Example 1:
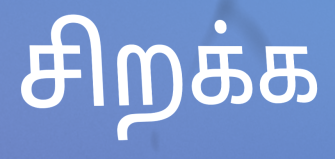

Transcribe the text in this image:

சிறக்க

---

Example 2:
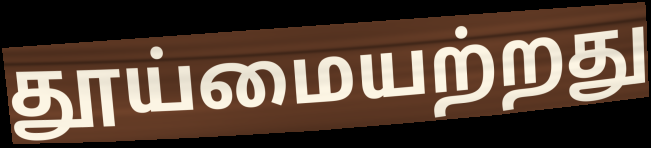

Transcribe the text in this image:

தூய்மையற்றது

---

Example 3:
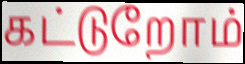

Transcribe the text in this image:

கட்டுறோம்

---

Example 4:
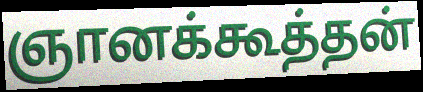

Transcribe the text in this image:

ஞானக்கூத்தன்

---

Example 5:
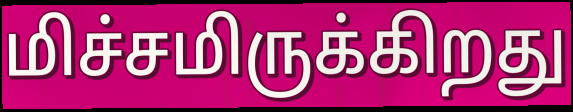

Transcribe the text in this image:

மிச்சமிருக்கிறது